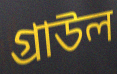
গ্রাউল